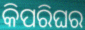
କିପରିଘର